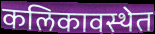
कलिकावस्थेत